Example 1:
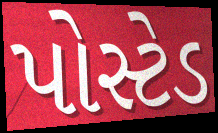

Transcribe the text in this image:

પોસ્ટેડ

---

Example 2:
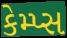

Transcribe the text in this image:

કેમ્પ્સ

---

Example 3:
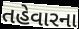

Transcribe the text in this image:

તહેવારના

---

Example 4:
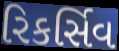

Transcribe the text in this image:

રિકર્સિવ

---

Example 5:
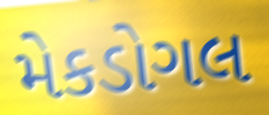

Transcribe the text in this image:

મેકડોગલ